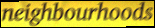
neighbourhoods